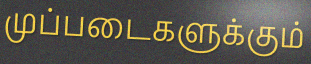
முப்படைகளுக்கும்